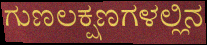
ಗುಣಲಕ್ಷಣಗಳಲ್ಲಿನ